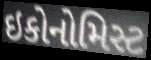
ઇકોનોમિસ્ટ